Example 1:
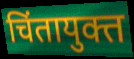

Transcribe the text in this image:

चिंतायुक्त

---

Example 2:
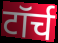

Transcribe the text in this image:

टॉर्च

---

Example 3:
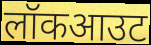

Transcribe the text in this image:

लॉकआउट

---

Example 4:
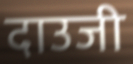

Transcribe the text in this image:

दाउजी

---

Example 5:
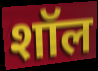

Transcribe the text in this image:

शॉल